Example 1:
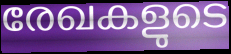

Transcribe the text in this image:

രേഖകളുടെ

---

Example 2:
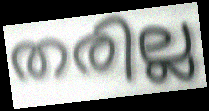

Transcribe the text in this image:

തരില്ല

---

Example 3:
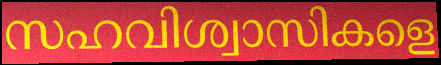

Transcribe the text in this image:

സഹവിശ്വാസികളെ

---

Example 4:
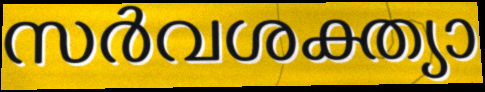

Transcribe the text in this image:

സർവശക്ത്യാ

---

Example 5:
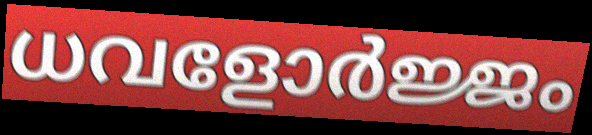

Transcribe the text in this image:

ധവളോർജ്ജം